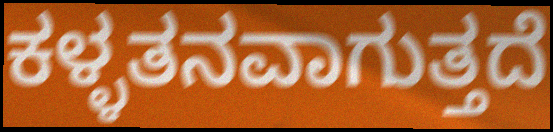
ಕಳ್ಳತನವಾಗುತ್ತದೆ